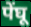
पेंघू